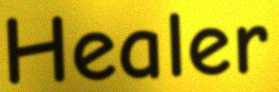
Healer